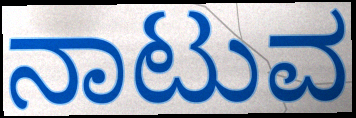
ನಾಟುವ